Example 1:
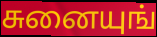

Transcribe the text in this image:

சுனையுங்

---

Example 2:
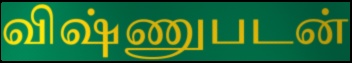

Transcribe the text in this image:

விஷ்ணுபடன்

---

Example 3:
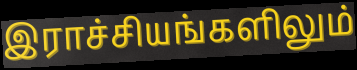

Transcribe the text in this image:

இராச்சியங்களிலும்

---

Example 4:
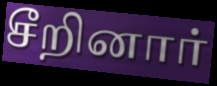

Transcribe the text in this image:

சீறினார்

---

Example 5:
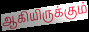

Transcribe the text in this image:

ஆகியிருக்கும்